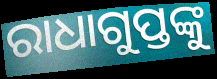
ରାଧାଗୁପ୍ତଙ୍କୁ